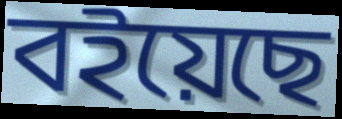
বইয়েছে